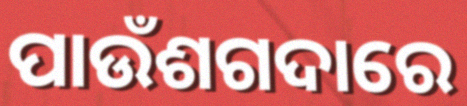
ପାଉଁଶଗଦାରେ